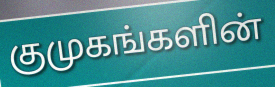
குமுகங்களின்